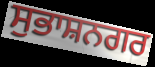
ਸੁਭਾਸ਼ਨਗਰ